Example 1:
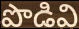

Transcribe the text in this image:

పొడివి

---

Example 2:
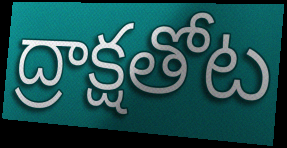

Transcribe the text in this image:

ద్రాక్షతోట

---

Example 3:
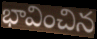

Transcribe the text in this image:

భావించిన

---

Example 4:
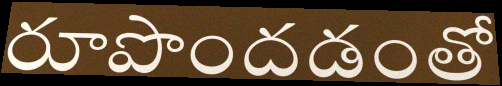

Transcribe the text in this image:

రూపొందడంతో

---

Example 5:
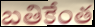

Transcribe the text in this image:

బతికేంత